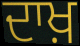
ਦਾਖ਼